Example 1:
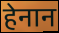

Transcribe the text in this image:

हेनान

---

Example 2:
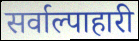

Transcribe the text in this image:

सर्वाल्पाहारी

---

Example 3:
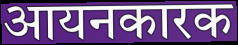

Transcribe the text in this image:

आयनकारक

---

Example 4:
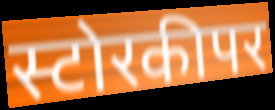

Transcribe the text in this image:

स्टोरकीपर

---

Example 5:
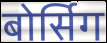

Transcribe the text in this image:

बोर्सिग